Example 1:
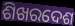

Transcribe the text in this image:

ଶିଖରଦେଶ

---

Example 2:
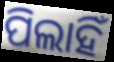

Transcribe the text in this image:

ପିଲାହିଁ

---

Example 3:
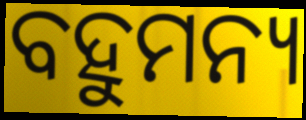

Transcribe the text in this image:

ବହୁମନ୍ୟ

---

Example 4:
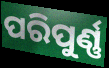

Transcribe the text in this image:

ପରିପୁର୍ଣ୍ଣ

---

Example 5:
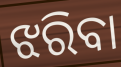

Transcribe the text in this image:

ଝରିବା